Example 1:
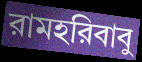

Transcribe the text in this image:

রামহরিবাবু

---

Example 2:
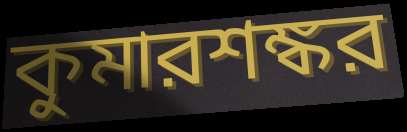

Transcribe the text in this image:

কুমারশঙ্কর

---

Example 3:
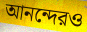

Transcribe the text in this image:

আনন্দেরও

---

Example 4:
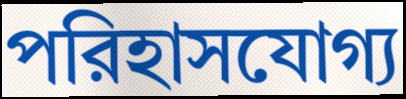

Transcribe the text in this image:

পরিহাসযোগ্য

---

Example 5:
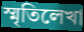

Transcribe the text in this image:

স্মৃতিলেখা